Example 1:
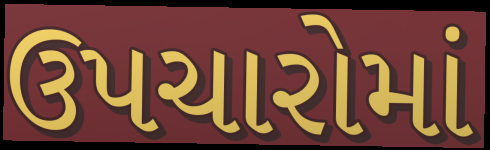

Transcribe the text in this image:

ઉપચારોમાં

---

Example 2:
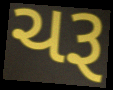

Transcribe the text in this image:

ચરૂ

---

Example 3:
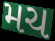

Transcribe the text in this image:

મચ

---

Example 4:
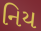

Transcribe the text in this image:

નિય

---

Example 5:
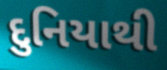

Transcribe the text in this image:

દુનિયાથી